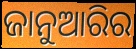
ଜାନୁଆରିର